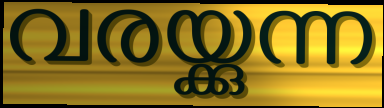
വരയ്ക്കുന്ന